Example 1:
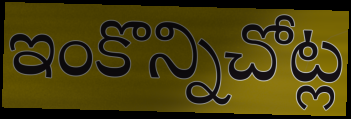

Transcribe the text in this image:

ఇంకొన్నిచోట్ల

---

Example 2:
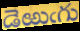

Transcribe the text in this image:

డెఱుఁగు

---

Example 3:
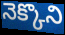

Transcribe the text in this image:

నెక్కొని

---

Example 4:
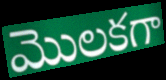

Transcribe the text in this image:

మొలకగా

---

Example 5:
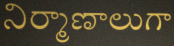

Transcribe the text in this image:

నిర్మాణాలుగా